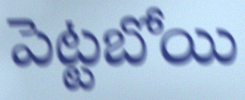
పెట్టబోయి